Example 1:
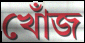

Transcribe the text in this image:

খোঁজ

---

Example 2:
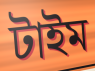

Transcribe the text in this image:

টাইম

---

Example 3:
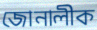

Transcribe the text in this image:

জোনালীক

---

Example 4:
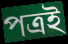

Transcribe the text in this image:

পত্ৰই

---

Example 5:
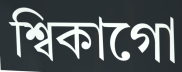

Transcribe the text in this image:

শ্বিকাগো